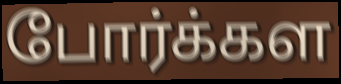
போர்க்கள